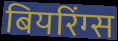
बियरिंग्स